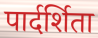
पार्दर्शिता